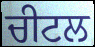
ਚੀਟਲ